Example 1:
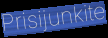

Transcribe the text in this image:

Prisijunkite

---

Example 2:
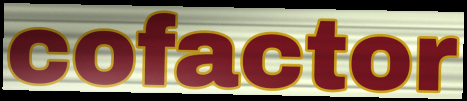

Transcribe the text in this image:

cofactor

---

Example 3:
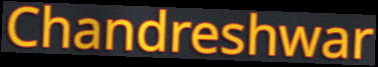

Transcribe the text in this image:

Chandreshwar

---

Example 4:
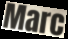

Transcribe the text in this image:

Marc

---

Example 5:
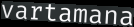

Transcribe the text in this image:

vartamana